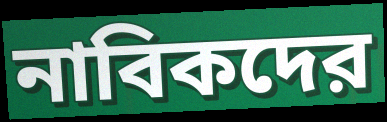
নাবিকদের